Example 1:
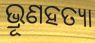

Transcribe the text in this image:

ଭ୍ରୂଣହତ୍ୟା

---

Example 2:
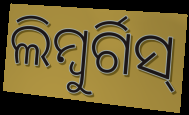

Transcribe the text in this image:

ଲିମ୍ବୁର୍ଗିସ୍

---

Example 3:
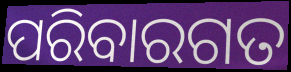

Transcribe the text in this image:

ପରିବାରଗତ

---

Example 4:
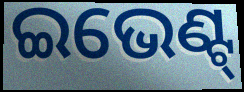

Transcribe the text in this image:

ଇଭେଣ୍ଟ୍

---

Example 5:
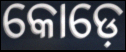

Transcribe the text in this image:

କୋଡ଼େ